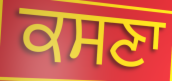
ਕਸਣਾ